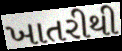
ખાતરીથી